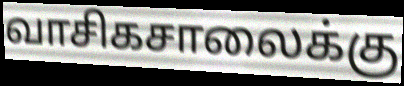
வாசிகசாலைக்கு